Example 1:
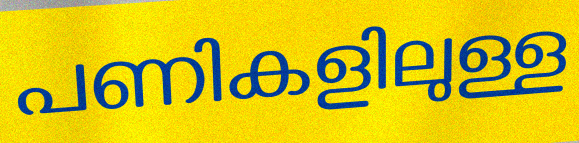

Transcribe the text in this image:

പണികളിലുള്ള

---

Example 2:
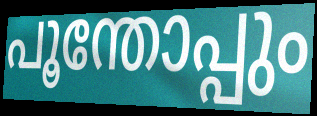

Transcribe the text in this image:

പൂന്തോപ്പും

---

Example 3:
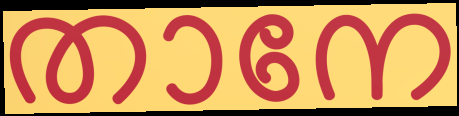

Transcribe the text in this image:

താനേ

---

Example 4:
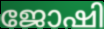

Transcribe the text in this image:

ജോഷി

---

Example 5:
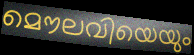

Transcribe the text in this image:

മൌലവിയെയും